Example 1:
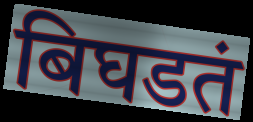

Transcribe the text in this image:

बिघडतं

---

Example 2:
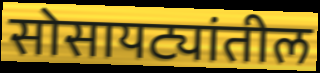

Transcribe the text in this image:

सोसायट्यांतील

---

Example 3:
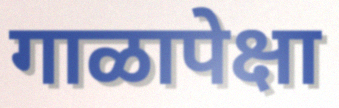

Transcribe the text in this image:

गाळापेक्षा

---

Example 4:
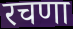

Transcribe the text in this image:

रचणा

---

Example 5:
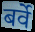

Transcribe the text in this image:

बर्वे